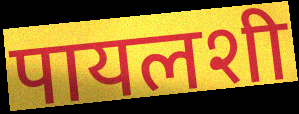
पायलशी